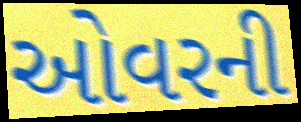
ઓવરની